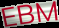
EBM